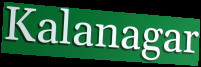
Kalanagar